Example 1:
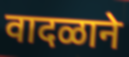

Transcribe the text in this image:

वादळाने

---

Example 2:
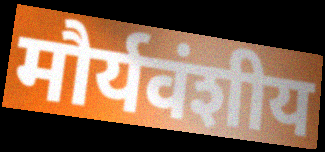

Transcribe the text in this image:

मौर्यवंशीय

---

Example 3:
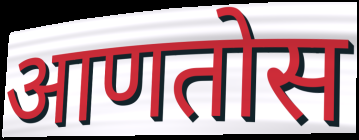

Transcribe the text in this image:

आणतोस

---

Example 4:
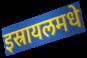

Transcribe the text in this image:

इस्रायलमधे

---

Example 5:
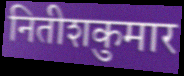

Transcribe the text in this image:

नितीशकुमार